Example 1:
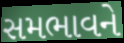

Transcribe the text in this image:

સમભાવને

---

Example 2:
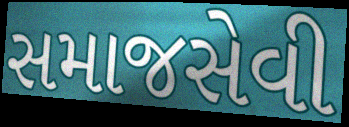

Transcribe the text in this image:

સમાજસેવી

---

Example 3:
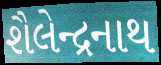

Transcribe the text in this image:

શૈલેન્દ્રનાથ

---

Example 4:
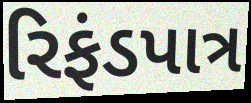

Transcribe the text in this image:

રિફંડપાત્ર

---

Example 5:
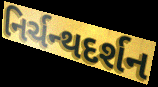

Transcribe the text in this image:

નિર્ચન્થદર્શન